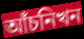
আঁচনিখন